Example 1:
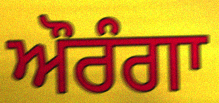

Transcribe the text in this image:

ਔਰੰਗਾ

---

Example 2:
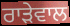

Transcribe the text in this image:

ਰਾੜੇਵਾਲ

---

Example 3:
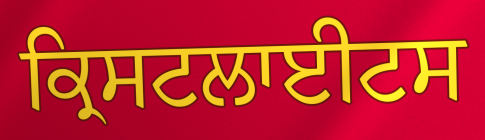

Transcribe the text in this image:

ਕ੍ਰਿਸਟਲਾਈਟਸ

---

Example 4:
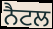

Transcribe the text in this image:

ਨੈਟਲ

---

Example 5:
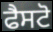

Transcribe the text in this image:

ਫੈਸਟੋ